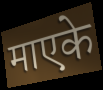
माएके